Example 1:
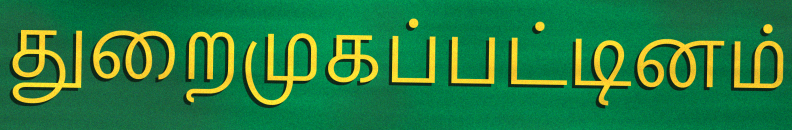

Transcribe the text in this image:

துறைமுகப்பட்டினம்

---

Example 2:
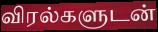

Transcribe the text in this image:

விரல்களுடன்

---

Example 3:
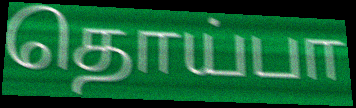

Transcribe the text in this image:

தொய்பா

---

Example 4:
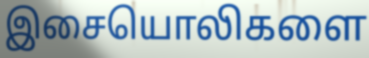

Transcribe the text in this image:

இசையொலிகளை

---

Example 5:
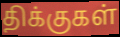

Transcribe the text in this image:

திக்குகள்